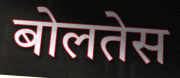
बोलतेस